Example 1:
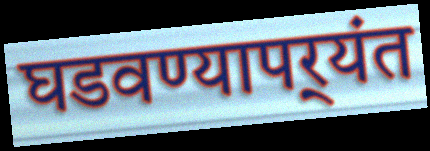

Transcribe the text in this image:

घडवण्यापर्यंत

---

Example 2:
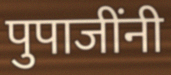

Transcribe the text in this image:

पुपाजींनी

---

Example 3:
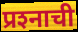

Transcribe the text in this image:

प्रश्‍नाची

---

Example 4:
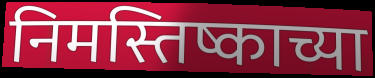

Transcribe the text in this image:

निमस्तिष्काच्या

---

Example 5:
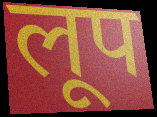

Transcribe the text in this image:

लूप